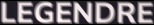
LEGENDRE